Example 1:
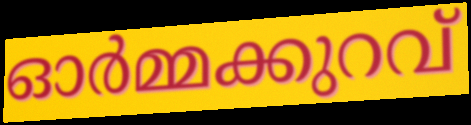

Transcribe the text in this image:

ഓർമ്മക്കുറവ്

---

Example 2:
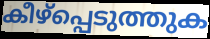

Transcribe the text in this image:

കീഴ്പ്പെടുത്തുക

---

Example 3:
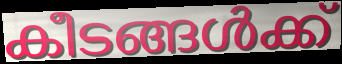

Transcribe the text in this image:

കീടങ്ങൾക്ക്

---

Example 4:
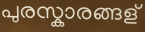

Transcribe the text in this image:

പുരസ്കാരങ്ങള്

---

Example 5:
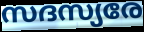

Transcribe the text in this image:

സദസ്യരേ